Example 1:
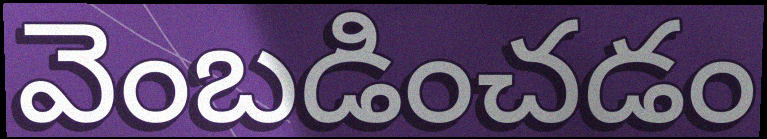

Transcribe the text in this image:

వెంబడించడం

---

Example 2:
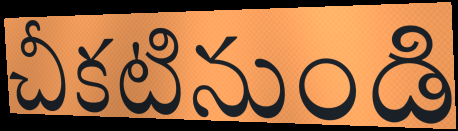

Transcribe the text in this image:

చీకటినుండి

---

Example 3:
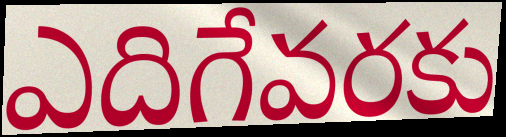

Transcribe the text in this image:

ఎదిగేవరకు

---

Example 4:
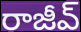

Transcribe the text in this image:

రాజీవ్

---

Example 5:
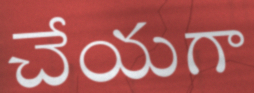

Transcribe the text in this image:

చేయగా